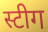
स्टीग